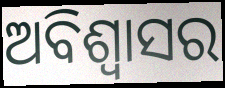
ଅବିଶ୍ବାସର